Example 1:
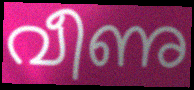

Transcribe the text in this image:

വീണു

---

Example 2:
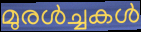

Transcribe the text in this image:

മുരൾച്ചകൾ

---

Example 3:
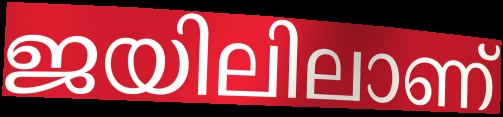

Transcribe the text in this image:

ജയിലിലാണ്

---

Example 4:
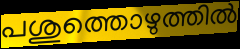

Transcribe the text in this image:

പശുത്തൊഴുത്തിൽ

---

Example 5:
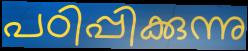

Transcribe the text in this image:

പഠിപ്പിക്കുന്നു